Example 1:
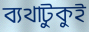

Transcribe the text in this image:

ব্যথাটুকুই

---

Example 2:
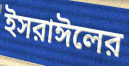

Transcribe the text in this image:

ইসরাঈলের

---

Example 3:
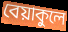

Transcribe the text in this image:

বেয়াকুলে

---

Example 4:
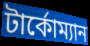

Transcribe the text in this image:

টার্কোম্যান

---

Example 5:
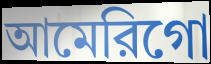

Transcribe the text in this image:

আমেরিগো